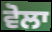
ਵੋਲਾ